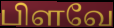
பிளவே